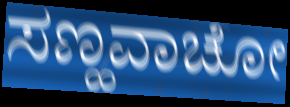
ಸಣ್ಹವಾಚೋ